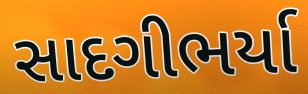
સાદગીભર્યા